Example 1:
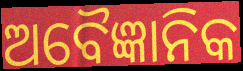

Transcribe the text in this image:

ଅବୈଜ୍ଞାନିକ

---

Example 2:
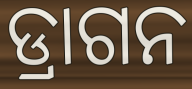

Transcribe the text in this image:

ଡ୍ରାଗନ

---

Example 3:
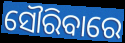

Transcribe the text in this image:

ସୌରିବାରେ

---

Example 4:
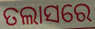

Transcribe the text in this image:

ତଲାସରେ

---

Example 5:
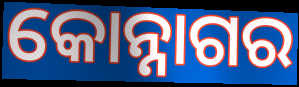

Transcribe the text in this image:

କୋନ୍ନାଗର